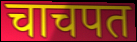
चाचपत